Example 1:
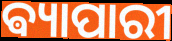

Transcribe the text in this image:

ଵ୍ୟାପାରୀ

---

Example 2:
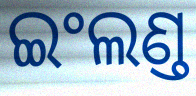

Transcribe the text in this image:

ଇଂଲଣ୍ଡ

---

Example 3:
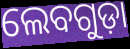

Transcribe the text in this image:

ଲେବଗୁଡ଼ା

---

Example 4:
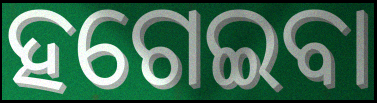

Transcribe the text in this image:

ହଗେଇବା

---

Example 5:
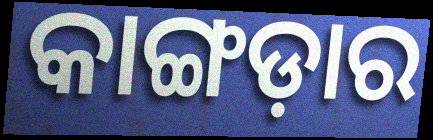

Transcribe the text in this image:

କାଙ୍ଗଡ଼ାର